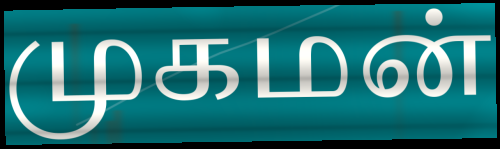
முகமன்